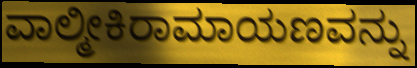
ವಾಲ್ಮೀಕಿರಾಮಾಯಣವನ್ನು